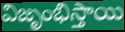
విజృంభిస్తాయి